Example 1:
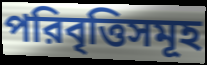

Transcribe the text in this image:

পরিবৃত্তিসমূহ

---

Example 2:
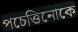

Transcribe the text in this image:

পচেত্তিনোকে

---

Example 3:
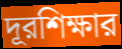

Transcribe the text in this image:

দূরশিক্ষার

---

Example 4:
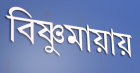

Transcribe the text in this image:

বিষ্ণুমায়ায়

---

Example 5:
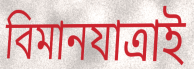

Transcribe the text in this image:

বিমানযাত্রাই